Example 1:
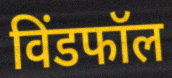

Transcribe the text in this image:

विंडफॉल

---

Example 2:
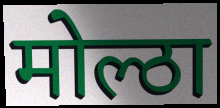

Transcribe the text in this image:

मोल्ठा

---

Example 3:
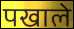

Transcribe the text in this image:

पखाले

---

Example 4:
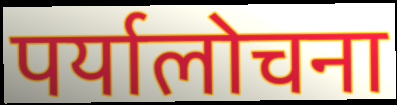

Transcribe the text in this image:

पर्यालोचना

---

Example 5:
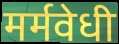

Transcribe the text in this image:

मर्मवेधी